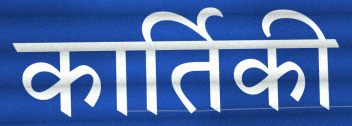
कार्तिकी